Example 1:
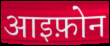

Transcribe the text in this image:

आइफ़ोन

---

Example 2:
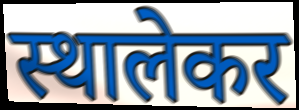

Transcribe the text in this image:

स्थालेकर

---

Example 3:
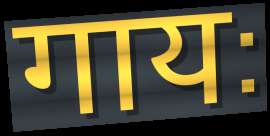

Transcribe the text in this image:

गायः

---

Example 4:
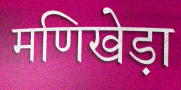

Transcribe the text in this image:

मणिखेड़ा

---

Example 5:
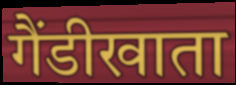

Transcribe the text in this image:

गैंडीखाता